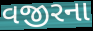
વજીરના